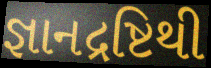
જ્ઞાનદ્રષ્ટિથી